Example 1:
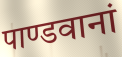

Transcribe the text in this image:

पाण्डवानां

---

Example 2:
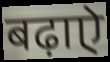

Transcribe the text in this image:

बढ़ाऐ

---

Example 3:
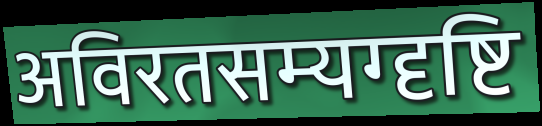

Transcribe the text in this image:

अविरतसम्यग्दृष्टि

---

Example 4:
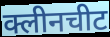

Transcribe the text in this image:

क्लीनचीट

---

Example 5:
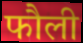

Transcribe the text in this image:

फौली